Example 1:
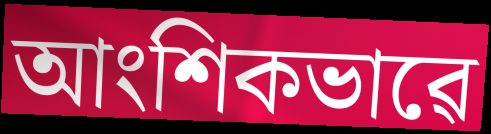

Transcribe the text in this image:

আংশিকভাৱে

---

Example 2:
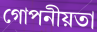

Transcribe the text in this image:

গোপনীয়তা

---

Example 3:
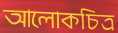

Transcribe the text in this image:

আলোকচিত্ৰ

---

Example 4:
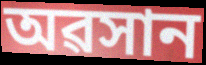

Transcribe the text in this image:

অৱসান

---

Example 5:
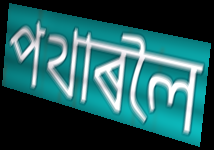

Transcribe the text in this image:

পথাৰলৈ